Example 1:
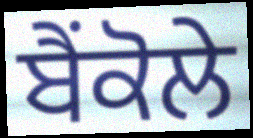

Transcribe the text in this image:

ਬੈਂਕੋਲੇ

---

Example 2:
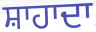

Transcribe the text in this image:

ਸ਼ਾਹਾਦਾ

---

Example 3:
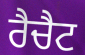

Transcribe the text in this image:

ਰੈਚੈਟ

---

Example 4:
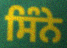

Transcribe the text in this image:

ਸਿੰਨੇ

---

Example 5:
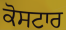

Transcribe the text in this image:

ਕੋਸਟਾਰ